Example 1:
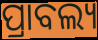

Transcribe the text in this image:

ପ୍ରାବଲ୍ୟ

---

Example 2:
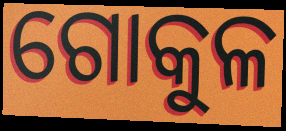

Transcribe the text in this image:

ଗୋକୁଳ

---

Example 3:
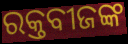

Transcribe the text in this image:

ରକ୍ତବୀଜଙ୍କ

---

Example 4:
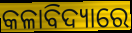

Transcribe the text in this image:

କଳାବିଦ୍ୟାରେ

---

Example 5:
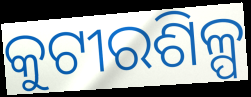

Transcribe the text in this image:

କୁଟୀରଶିଳ୍ପ